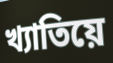
খ্যাতিয়ে